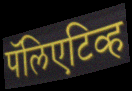
पॅलिएटिव्ह